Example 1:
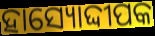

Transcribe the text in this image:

ହାସ୍ୟୋଦ୍ଦୀପକ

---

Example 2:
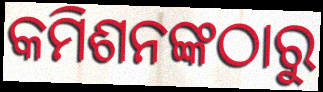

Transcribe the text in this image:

କମିଶନଙ୍କଠାରୁ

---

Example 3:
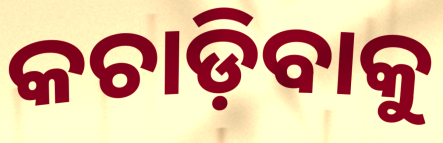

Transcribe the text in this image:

କଚାଡ଼ିବାକୁ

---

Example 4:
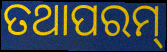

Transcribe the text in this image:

ତଥାପରମ୍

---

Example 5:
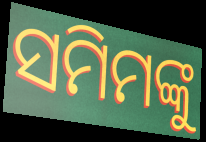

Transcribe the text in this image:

ସମିମଙ୍କୁ